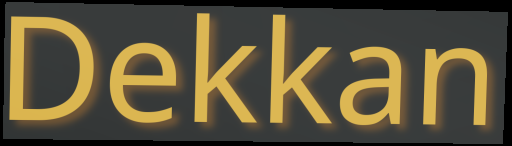
Dekkan